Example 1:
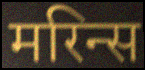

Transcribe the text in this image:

मरिन्स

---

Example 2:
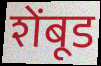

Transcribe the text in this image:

शेंबूड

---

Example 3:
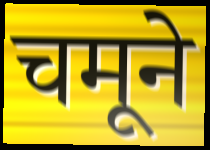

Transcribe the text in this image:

चमूने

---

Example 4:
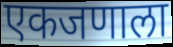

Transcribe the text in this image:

एकजणाला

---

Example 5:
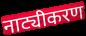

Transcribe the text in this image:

नाट्यीकरण